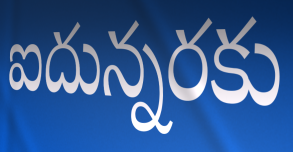
ఐదున్నరకు